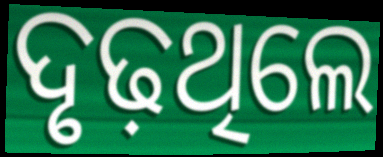
ଦୃଢ଼ଥିଲେ